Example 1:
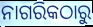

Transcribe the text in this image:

ନାଗରିକଠାରୁ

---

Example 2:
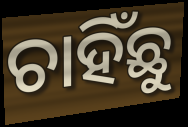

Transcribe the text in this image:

ଚାହିଁଛୁ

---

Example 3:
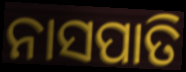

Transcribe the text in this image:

ନାସପାତି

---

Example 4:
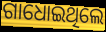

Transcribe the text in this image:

ଗାଧୋଇଥିଲେ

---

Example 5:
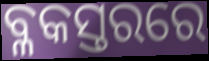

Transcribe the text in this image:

ବ୍ଳକସ୍ତରରେ